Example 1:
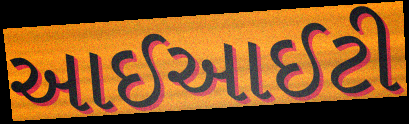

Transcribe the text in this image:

આઈઆઈટી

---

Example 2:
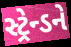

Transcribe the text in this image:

સ્ટ્રેન્ડને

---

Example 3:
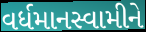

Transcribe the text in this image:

વર્ધમાનસ્વામીને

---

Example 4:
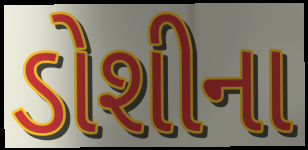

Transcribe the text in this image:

ડોશીના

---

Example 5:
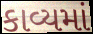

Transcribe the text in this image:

કાવ્યમાં